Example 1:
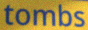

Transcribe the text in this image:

tombs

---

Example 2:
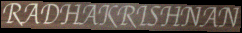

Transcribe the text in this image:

RADHAKRISHNAN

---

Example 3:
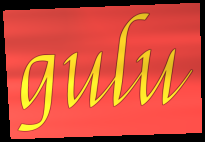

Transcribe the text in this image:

gulu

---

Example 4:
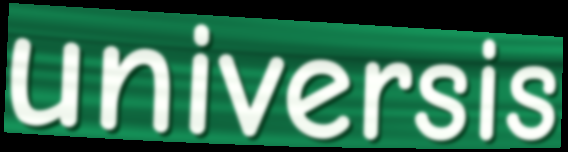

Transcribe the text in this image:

universis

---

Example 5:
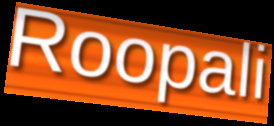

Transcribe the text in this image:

Roopali